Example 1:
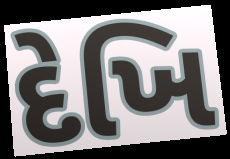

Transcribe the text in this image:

દેખિ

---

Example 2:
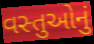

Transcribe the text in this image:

વસ્તુઓનું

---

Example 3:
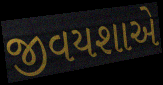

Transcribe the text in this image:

જીવયશાએ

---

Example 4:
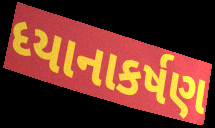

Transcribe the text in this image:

ધ્યાનાકર્ષણ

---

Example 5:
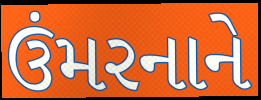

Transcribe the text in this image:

ઉંમરનાને